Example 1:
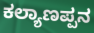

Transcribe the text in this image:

ಕಲ್ಯಾಣಪ್ಪನ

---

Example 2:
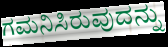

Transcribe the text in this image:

ಗಮನಿಸಿರುವುದನ್ನು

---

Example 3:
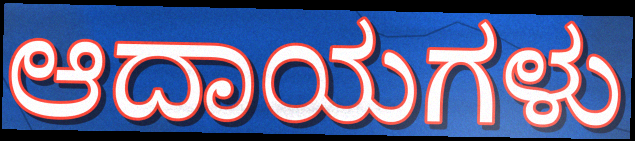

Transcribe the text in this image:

ಆದಾಯಗಳು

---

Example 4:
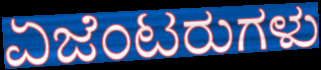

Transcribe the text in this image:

ಏಜೆಂಟರುಗಳು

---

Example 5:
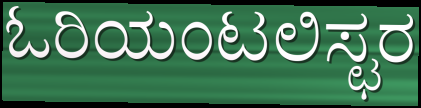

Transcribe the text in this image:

ಓರಿಯಂಟಲಿಸ್ಟರ